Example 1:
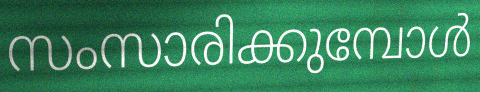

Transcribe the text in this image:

സംസാരിക്കുമ്പോൾ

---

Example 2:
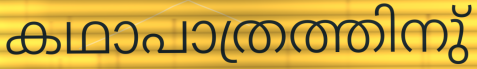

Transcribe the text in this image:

കഥാപാത്രത്തിനു്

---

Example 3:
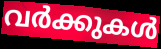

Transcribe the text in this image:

വർക്കുകൾ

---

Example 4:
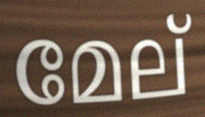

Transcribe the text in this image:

മേല്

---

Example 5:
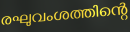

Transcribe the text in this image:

രഘുവംശത്തിന്റെ